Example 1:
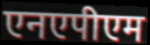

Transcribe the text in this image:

एनएपीएम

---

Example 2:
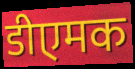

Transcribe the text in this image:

डीएमक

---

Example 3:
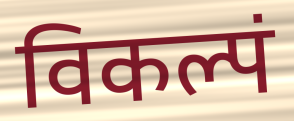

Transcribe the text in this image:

विकल्पं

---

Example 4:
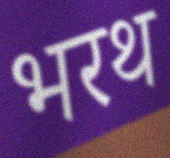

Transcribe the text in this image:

भरथ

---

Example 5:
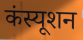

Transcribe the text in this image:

कंस्यूशन